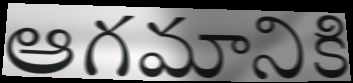
ఆగమానికి